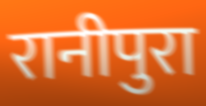
रानीपुरा